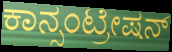
ಕಾನ್ಸಂಟ್ರೇಷನ್